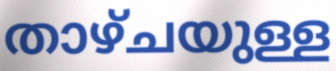
താഴ്ചയുള്ള